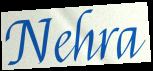
Nehra